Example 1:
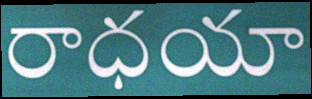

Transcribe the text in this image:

రాధయా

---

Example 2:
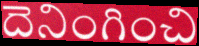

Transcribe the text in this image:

దెనింగించి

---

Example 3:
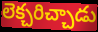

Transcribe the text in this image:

లెక్చరిచ్చాడు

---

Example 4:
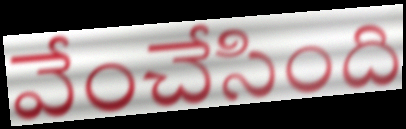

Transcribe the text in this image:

వేంచేసింది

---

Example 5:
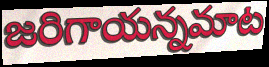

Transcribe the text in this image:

జరిగాయన్నమాట